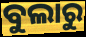
ବୁଲାରୁ